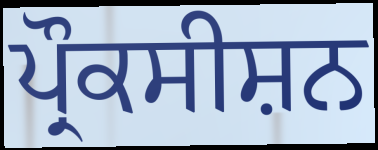
ਪ੍ਰੌਕਸੀਸ਼ਨ